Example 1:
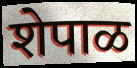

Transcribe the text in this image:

शेपाळ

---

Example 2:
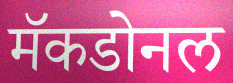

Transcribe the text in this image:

मॅकडोनल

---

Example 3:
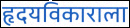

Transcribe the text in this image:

हृदयविकाराला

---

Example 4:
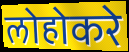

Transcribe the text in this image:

लोहोकरे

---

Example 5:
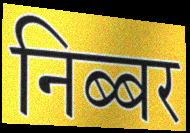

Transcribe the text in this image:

निब्बर